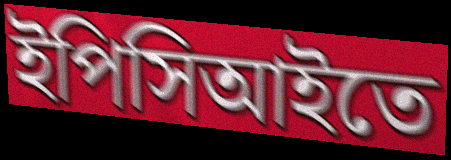
ইপিসিআইতে